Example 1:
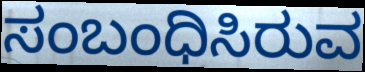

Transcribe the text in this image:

ಸಂಬಂಧಿಸಿರುವ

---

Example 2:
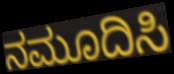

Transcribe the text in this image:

ನಮೂದಿಸಿ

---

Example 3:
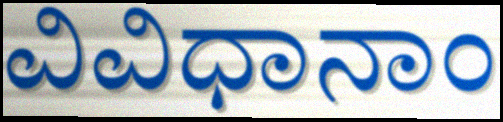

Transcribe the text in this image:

ವಿವಿಧಾನಾಂ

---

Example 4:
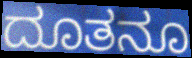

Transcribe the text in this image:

ದೂತನೂ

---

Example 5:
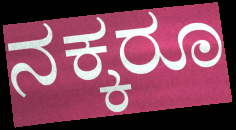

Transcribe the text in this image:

ನಕ್ಕರೂ